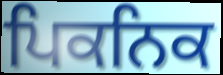
ਪਿਕਨਿਕ